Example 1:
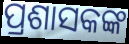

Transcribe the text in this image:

ପ୍ରଶାସକଙ୍କ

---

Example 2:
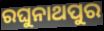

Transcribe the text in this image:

ରଘୁନାଥପୁର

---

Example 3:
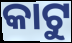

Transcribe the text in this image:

କାଟୁ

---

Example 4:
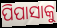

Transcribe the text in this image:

ପିପାସାକୁ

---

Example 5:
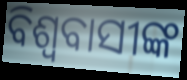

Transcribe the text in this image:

ବିଶ୍ଵବାସୀଙ୍କ